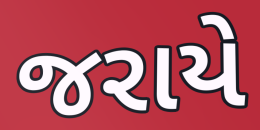
જરાયે